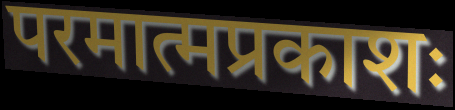
परमात्मप्रकाशः